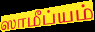
ஸாமீப்யம்